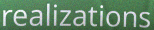
realizations